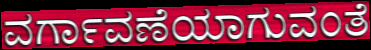
ವರ್ಗಾವಣೆಯಾಗುವಂತೆ